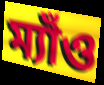
ম্যাঁও